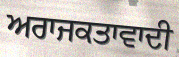
ਅਰਾਜਕਤਾਵਾਦੀ